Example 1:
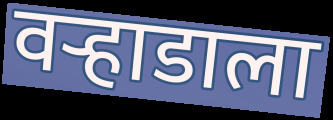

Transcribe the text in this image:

वऱ्हाडाला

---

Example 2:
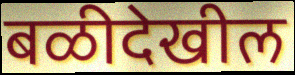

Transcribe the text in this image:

बळीदेखील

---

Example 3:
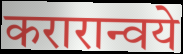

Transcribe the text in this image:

करारान्वये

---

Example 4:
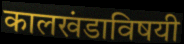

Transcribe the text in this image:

कालखंडाविषयी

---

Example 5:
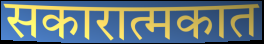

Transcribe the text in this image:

सकारात्मकात